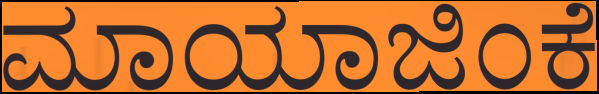
ಮಾಯಾಜಿಂಕೆ